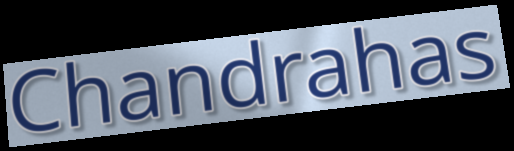
Chandrahas